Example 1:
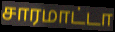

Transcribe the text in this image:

சாரமாட்டா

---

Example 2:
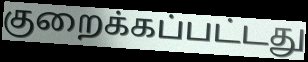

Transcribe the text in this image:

குறைக்கப்பட்டது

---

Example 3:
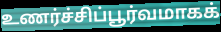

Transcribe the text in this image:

உணர்ச்சிப்பூர்வமாகக்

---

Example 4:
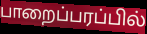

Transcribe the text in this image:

பாறைப்பரப்பில்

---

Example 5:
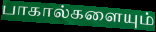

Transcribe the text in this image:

பாகால்களையும்